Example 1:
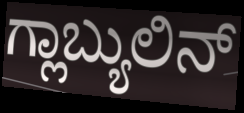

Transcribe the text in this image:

ಗ್ಲಾಬ್ಯುಲಿನ್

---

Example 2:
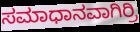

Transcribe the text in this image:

ಸಮಾಧಾನವಾಗಿರ್ರಿ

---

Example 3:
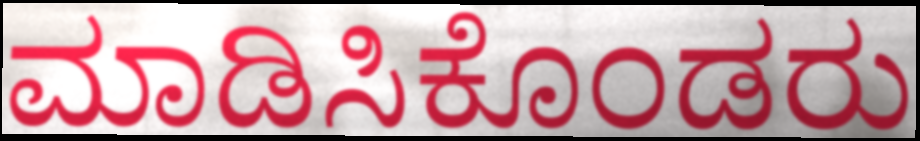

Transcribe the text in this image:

ಮಾಡಿಸಿಕೊಂಡರು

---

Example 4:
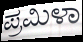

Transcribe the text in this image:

ಪ್ರಮಿಳಾ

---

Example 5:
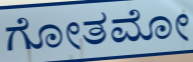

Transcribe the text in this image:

ಗೋತಮೋ